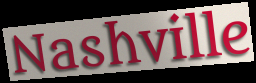
Nashville